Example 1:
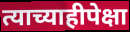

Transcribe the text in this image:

त्याच्याहीपेक्षा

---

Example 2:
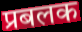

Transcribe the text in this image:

प्रबलक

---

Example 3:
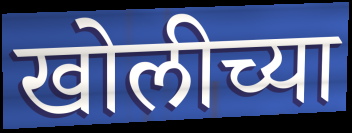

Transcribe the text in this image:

खोलीच्या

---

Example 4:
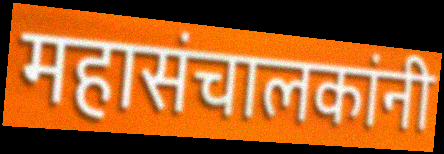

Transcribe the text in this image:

महासंचालकांनी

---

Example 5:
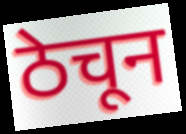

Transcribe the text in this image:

ठेचून